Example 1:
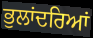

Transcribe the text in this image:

ਭੁਲਾਂਦਰਿਆਂ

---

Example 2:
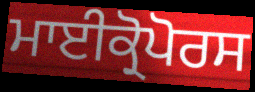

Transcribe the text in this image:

ਮਾਈਕ੍ਰੋਪੋਰਸ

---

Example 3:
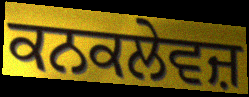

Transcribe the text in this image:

ਕਨਕਲੇਵਜ਼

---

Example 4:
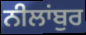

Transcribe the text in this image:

ਨੀਲਾਂਬੁਰ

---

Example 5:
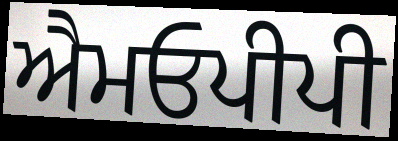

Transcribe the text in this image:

ਐਮਓਪੀਪੀ